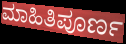
ಮಾಹಿತಿಪೂರ್ಣ